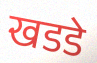
खडडे